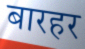
बारहर